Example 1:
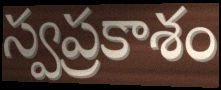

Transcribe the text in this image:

స్వప్రకాశం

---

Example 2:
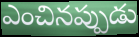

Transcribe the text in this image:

ఎంచినప్పుడు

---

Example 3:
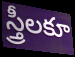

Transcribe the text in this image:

స్త్రీలకూ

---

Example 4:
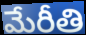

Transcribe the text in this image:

మేరీతి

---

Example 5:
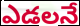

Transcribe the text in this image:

ఎడలనే